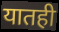
यातही